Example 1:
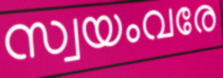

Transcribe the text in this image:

സ്വയംവരേ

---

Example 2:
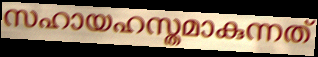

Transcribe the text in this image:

സഹായഹസ്തമാകുന്നത്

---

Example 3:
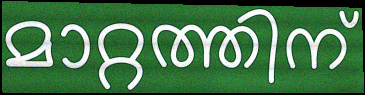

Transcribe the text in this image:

മാറ്റത്തിന്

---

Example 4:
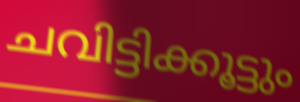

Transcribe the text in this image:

ചവിട്ടിക്കൂട്ടും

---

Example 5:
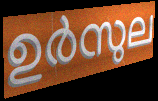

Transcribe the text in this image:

ഉർസുല